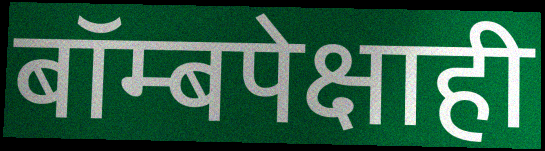
बॉम्बपेक्षाही